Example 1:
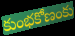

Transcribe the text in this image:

కుంభకోణంకు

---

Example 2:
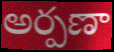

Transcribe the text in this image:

అర్పణా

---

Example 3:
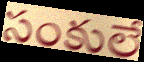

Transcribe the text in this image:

సంకులే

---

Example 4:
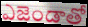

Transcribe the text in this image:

ఎజెండాతో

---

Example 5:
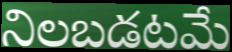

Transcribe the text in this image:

నిలబడటమే